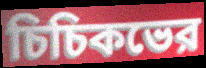
চিচিকভের